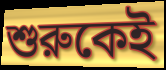
শুরুকেই